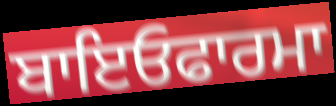
ਬਾਇਓਫਾਰਮਾ